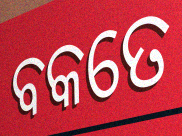
ବକତେ